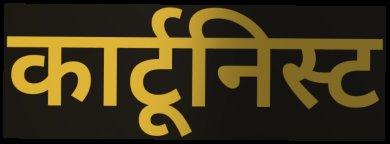
कार्टूनिस्ट